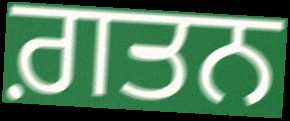
ਗ਼ਤਨ